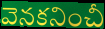
వెనకనించీ